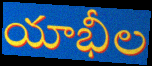
యాభీల